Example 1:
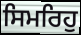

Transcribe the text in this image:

ਸਿਮਰਿਹੁ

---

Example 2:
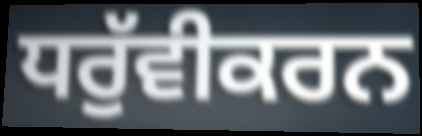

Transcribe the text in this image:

ਧਰੁੱਵੀਕਰਨ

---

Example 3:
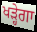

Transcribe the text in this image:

ਖੜ੍ਹੇਗਾ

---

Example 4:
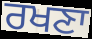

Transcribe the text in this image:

ਰਖਣਾ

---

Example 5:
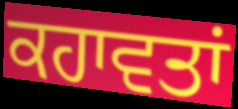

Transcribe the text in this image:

ਕਹਾਵਤਾਂ